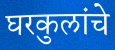
घरकुलांचे